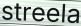
streela